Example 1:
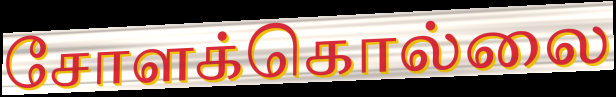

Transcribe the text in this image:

சோளக்கொல்லை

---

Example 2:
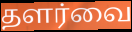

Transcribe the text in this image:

தளர்வை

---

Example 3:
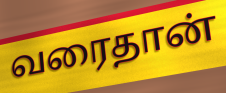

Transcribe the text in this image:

வரைதான்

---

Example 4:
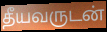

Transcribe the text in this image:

தீயவருடன்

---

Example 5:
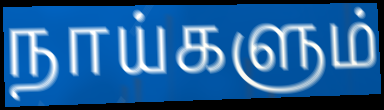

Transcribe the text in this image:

நாய்களும்